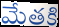
మేతకి